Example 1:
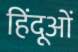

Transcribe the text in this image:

हिंदूओं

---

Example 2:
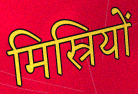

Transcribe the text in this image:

मिस्रियों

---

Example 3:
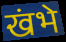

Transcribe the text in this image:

खंभे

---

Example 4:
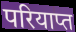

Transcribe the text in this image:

परियाप्त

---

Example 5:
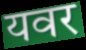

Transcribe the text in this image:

यवर